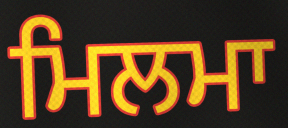
ਮਿਲਮਾ